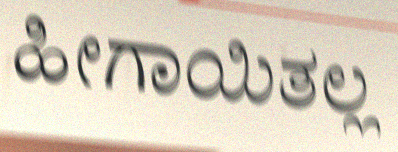
ಹೀಗಾಯಿತಲ್ಲ